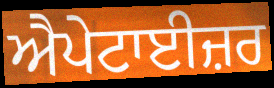
ਐਪੇਟਾਈਜ਼ਰ